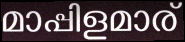
മാപ്പിളമാര്